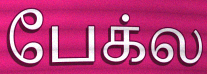
பேக்ல